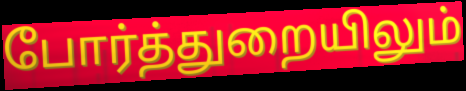
போர்த்துறையிலும்